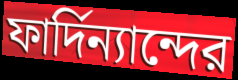
ফার্দিন্যান্দের